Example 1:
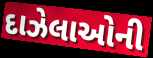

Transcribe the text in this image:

દાઝેલાઓની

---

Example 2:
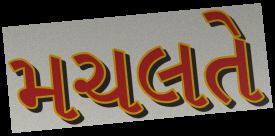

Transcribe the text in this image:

મચલતે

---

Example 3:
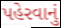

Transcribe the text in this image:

પહેરવાનું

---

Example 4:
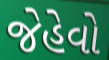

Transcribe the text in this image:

જેહેવો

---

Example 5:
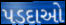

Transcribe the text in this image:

પડદાઓ